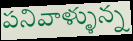
పనివాళ్ళున్న